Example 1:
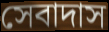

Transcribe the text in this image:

সেবাদাস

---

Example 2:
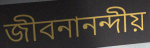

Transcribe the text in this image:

জীবনানন্দীয়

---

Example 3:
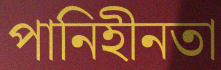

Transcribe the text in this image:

পানিহীনতা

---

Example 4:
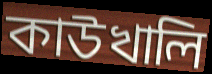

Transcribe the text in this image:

কাউখালি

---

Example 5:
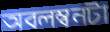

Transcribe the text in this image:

অবলম্বনটা